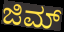
ಜಿಮ್